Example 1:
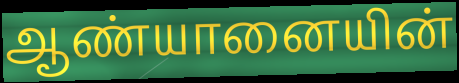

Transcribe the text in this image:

ஆண்யானையின்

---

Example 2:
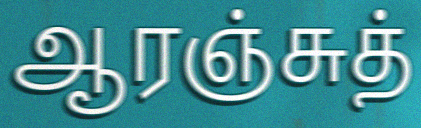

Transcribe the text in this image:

ஆரஞ்சுத்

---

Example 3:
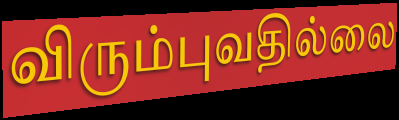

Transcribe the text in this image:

விரும்புவதில்லை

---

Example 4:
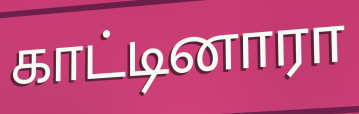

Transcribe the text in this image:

காட்டினாரா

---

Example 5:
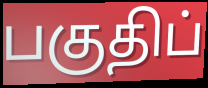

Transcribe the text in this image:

பகுதிப்